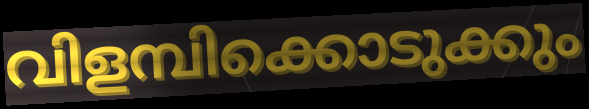
വിളമ്പിക്കൊടുക്കും